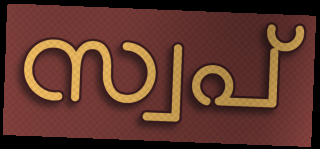
സ്വപ്